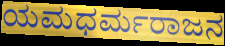
ಯಮಧರ್ಮರಾಜನ